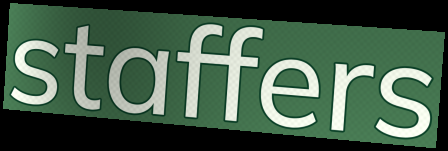
staffers